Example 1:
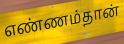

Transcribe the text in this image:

எண்ணம்தான்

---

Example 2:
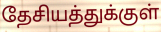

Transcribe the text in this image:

தேசியத்துக்குள்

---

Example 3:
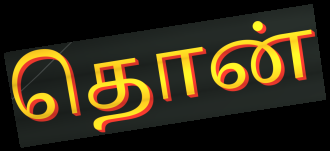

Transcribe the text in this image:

தொன்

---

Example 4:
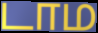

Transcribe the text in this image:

டாம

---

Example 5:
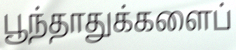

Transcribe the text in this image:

பூந்தாதுக்களைப்